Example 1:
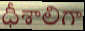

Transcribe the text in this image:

ధీశాలిగా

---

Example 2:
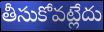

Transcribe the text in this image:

తీసుకోవట్లేదు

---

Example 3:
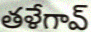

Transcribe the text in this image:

తళేగావ్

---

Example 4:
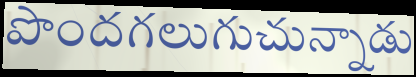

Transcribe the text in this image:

పొందగలుగుచున్నాడు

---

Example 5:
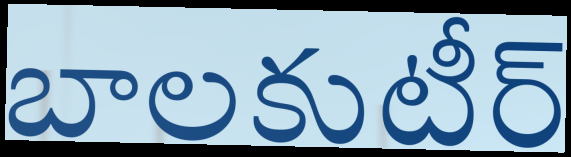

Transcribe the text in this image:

బాలకుటీర్